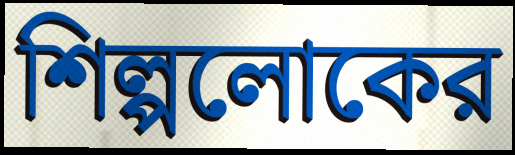
শিল্পলোকের